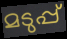
മടുപ്പ്